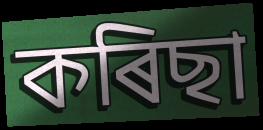
কৰিছা